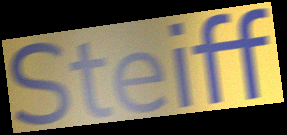
Steiff